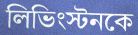
লিভিংস্টনকে